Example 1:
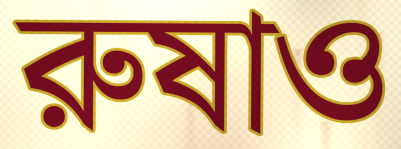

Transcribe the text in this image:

রুষাও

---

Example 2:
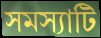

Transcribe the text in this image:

সমস্যাটি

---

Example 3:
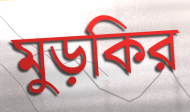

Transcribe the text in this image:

মুড়কির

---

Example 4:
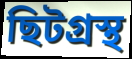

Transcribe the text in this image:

ছিটগ্রস্থ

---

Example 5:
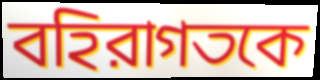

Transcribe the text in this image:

বহিরাগতকে